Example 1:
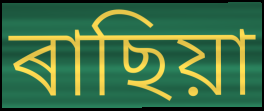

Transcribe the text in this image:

ৰাছিয়া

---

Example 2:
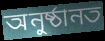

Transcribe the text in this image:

অনুষ্ঠানত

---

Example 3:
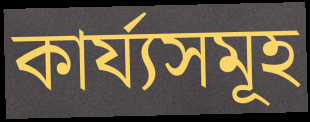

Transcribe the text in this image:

কাৰ্য্যসমূহ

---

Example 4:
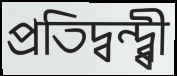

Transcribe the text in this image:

প্ৰতিদ্বন্দ্ব্বী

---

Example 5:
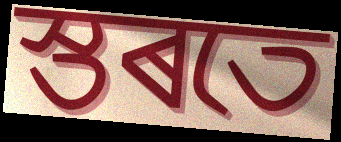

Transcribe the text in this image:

স্তৰতে